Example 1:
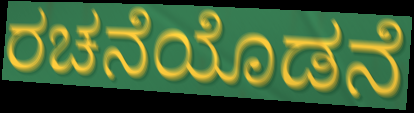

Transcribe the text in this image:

ರಚನೆಯೊಡನೆ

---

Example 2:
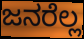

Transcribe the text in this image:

ಜನರೆಲ್ಲ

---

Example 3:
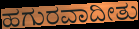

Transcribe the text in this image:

ಹಗುರವಾದೀತು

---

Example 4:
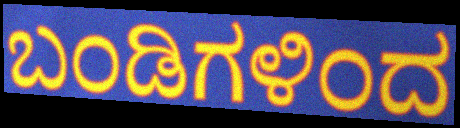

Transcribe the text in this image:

ಬಂಡಿಗಳಿಂದ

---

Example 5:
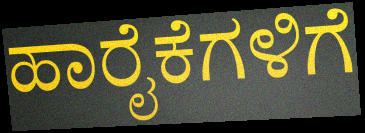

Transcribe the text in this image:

ಹಾರೈಕೆಗಳಿಗೆ